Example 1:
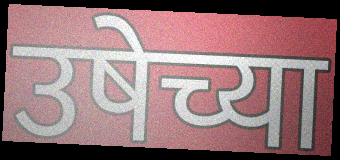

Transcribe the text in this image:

उषेच्या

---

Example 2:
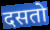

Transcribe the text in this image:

दसतो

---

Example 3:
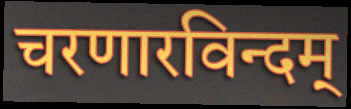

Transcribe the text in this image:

चरणारविन्दम्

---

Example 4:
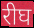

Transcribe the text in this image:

रीघ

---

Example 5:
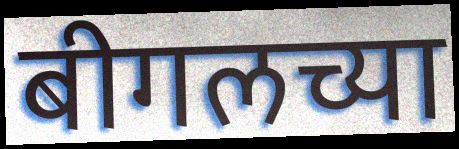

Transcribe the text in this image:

बीगलच्या